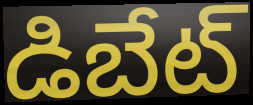
డిబేట్